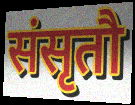
संसृतौ